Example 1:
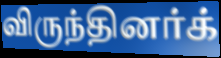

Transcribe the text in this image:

விருந்தினர்க்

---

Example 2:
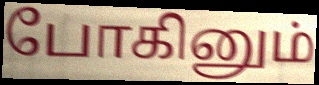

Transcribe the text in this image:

போகினும்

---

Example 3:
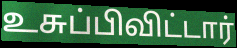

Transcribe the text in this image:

உசுப்பிவிட்டார்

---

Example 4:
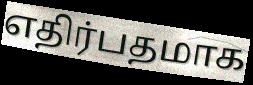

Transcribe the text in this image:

எதிர்பதமாக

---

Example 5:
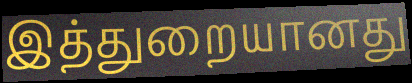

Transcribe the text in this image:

இத்துறையானது